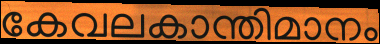
കേവലകാന്തിമാനം